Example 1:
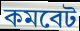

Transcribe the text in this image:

কমবেট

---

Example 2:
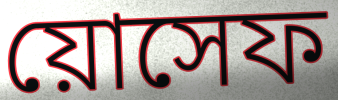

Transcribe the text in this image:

য়োসেফ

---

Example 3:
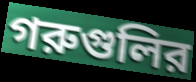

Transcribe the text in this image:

গরুগুলির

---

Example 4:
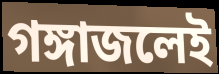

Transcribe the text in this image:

গঙ্গাজলেই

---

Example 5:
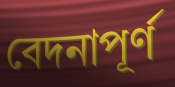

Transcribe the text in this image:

বেদনাপূর্ণ